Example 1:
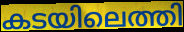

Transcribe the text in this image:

കടയിലെത്തി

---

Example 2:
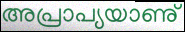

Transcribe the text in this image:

അപ്രാപ്യയാണു്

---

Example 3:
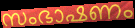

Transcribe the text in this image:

സംഭാഷണം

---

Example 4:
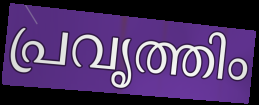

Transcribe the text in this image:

പ്രവൃത്തിം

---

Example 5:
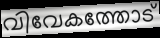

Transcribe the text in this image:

വിവേകത്തോട്